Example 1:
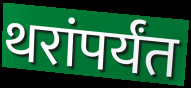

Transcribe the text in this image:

थरांपर्यंत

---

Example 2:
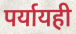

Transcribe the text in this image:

पर्यायही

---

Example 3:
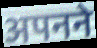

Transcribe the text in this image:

अपनने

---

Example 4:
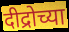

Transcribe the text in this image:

दीद्रोच्या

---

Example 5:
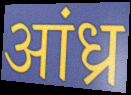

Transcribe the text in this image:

आंध्र